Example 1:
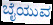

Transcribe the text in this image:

ಬೈಯುವ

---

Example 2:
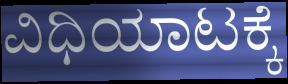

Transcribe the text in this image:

ವಿಧಿಯಾಟಕ್ಕೆ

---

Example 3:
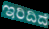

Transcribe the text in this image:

ಇರಿದಿದೆ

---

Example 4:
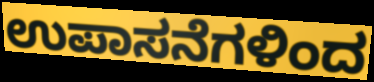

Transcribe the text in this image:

ಉಪಾಸನೆಗಳಿಂದ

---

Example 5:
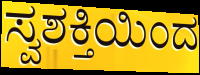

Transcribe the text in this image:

ಸ್ವಶಕ್ತಿಯಿಂದ